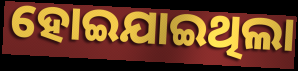
ହୋଇଯାଇଥିଲା